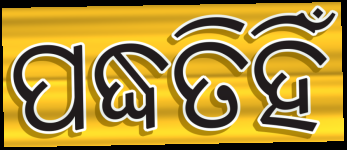
ପଦ୍ଧତିହିଁ